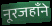
नूरजहाँने